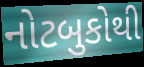
નોટબુકોથી